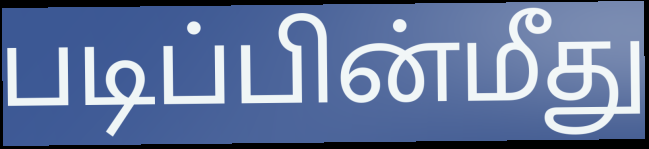
படிப்பின்மீது